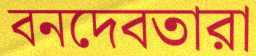
বনদেবতারা